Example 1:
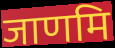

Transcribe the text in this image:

जाणमि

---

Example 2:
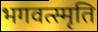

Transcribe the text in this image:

भगवत्स्मृति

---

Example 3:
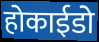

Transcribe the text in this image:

होकाईडो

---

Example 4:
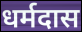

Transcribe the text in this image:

धर्मदास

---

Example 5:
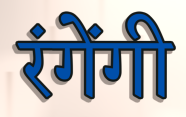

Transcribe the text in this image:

रंगेंगी